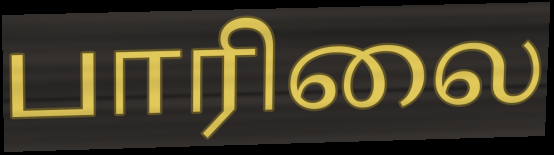
பாரிலை